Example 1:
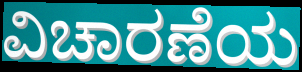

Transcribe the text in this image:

ವಿಚಾರಣೆಯ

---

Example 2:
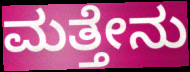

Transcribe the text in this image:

ಮತ್ತೇನು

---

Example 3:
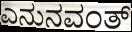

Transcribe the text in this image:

ಎನುನವಂತ್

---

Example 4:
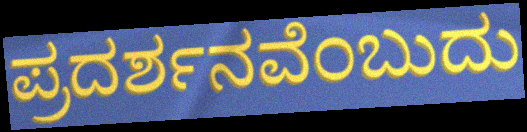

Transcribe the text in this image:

ಪ್ರದರ್ಶನವೆಂಬುದು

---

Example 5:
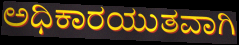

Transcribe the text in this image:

ಅಧಿಕಾರಯುತವಾಗಿ